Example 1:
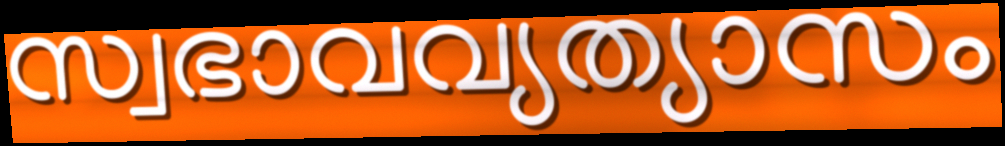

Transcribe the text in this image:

സ്വഭാവവ്യത്യാസം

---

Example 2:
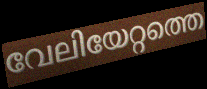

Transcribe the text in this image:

വേലിയേറ്റത്തെ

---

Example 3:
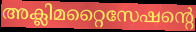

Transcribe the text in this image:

അക്ലിമറ്റൈസേഷന്റെ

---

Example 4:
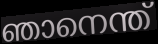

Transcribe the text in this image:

ഞാനെന്ത്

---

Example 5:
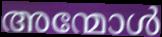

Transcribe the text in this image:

അന്മോൾ